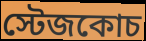
স্টেজকোচ